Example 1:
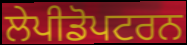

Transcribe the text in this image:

ਲੇਪੀਡੋਪਟਰਨ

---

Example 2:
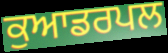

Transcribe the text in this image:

ਕੁਆਡਰਪਲ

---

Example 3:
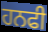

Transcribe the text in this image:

ਹਨਫੀ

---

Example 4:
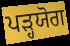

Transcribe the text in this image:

ਪੜ੍ਹਯੋਗ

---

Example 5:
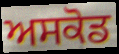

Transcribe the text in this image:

ਅਸਕੋਡ